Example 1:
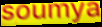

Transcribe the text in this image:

soumya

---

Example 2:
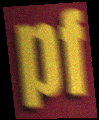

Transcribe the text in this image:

pf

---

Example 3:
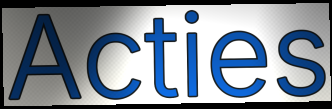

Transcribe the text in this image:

Acties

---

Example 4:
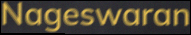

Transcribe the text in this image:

Nageswaran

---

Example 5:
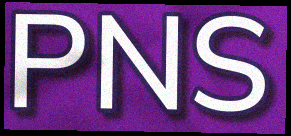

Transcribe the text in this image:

PNS